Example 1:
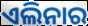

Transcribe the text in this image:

ଏଲିନାର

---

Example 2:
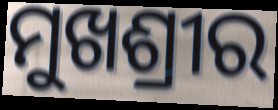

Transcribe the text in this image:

ମୁଖଶ୍ରୀର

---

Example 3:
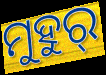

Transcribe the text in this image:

ମୁହୁର୍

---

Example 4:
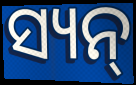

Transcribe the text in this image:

ସ୍ୟନ୍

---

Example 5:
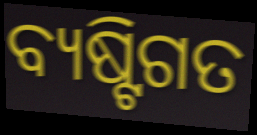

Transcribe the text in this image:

ବ୍ୟଷ୍ଟିଗତ